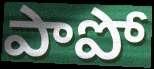
పాపో